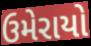
ઉમેરાયો